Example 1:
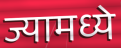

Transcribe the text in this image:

ज्यामध्ये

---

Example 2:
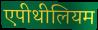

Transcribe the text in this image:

एपीथीलियम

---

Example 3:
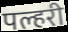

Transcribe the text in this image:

पल्हरी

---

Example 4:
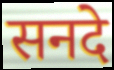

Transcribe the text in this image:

सनदे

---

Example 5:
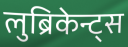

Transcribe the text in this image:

लुब्रिकेन्ट्स